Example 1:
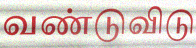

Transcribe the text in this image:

வண்டுவிடு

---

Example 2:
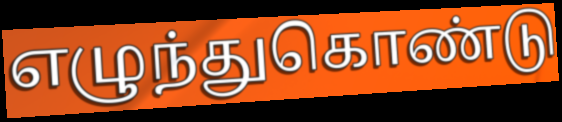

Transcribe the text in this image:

எழுந்துகொண்டு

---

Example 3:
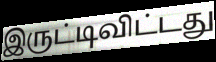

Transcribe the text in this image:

இருட்டிவிட்டது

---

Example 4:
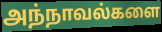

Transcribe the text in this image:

அந்நாவல்களை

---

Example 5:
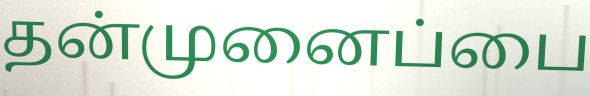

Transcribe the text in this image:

தன்முனைப்பை